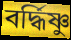
বর্দ্ধিষ্ণু